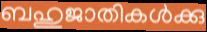
ബഹുജാതികൾക്കു